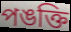
পঙক্তি